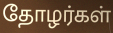
தோழர்கள்